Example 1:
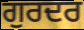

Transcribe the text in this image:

ਗੁਰਦਰ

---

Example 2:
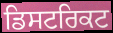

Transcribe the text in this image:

ਡਿਸਟਰਿਕਟ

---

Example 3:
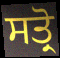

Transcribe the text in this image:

ਸਤ੍ਰੋ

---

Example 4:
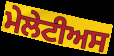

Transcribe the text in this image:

ਮੇਲੇਟੀਅਸ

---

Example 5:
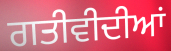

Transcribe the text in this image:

ਗਤੀਵੀਦੀਆਂ